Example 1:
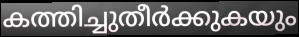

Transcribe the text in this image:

കത്തിച്ചുതീർക്കുകയും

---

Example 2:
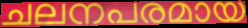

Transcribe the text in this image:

ചലനപരമായ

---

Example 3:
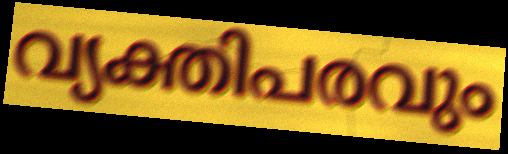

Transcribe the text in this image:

വ്യക്തിപരവും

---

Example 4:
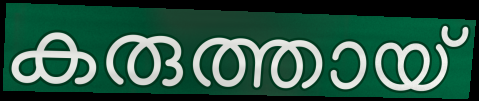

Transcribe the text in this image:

കരുത്തായ്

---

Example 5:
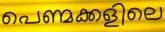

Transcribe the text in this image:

പെണ്മക്കളിലെ